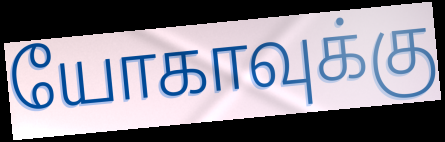
யோகாவுக்கு